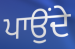
ਪਾਉਂਦੇ